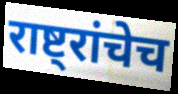
राष्ट्रांचेच